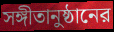
সঙ্গীতানুষ্ঠানের